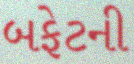
બફેટની